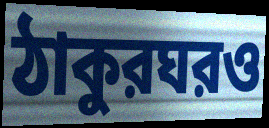
ঠাকুরঘরও